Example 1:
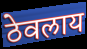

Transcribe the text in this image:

ठेवलाय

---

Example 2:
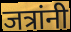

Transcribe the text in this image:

जत्रांनी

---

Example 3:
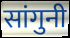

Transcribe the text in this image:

सांगुनी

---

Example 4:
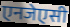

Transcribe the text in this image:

एनजेएसी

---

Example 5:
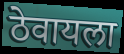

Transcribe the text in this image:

ठेवायला